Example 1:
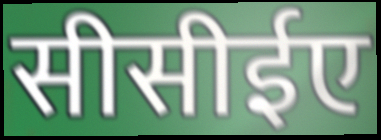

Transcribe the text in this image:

सीसीईए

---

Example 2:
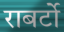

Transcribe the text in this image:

राबर्टो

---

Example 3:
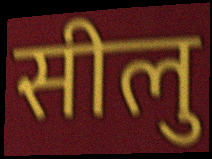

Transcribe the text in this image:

सीलु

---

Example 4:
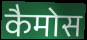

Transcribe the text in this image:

कैमोस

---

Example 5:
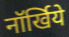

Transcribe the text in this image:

नॉर्खिये